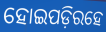
ହୋଇପଡ଼ିରହେ